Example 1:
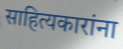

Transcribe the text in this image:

साहित्यकारांना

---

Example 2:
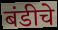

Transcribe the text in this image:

बंडीचे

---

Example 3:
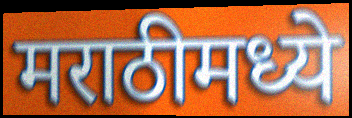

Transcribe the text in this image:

मराठीमध्ये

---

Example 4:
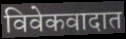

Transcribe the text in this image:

विवेकवादात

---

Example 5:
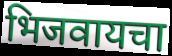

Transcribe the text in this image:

भिजवायचा